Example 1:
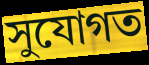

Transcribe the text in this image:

সুযোগত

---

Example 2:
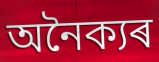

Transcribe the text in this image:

অনৈক্যৰ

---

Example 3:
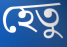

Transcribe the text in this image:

হেতু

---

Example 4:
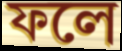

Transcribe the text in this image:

ফলে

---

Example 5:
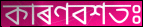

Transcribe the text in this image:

কাৰণবশতঃ